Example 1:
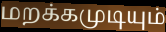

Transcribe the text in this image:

மறக்கமுடியும்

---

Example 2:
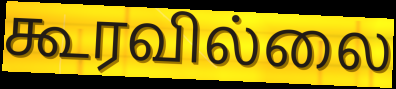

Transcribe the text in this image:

கூரவில்லை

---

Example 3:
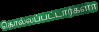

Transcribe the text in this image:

கொல்லப்பட்டார்களா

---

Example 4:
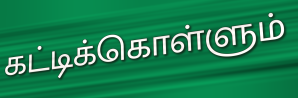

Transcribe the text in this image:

கட்டிக்கொள்ளும்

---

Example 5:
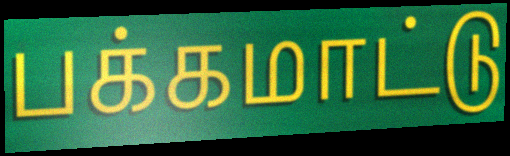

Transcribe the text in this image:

பக்கமாட்டு